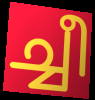
ച്ചീ